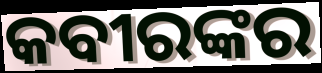
କବୀରଙ୍କର